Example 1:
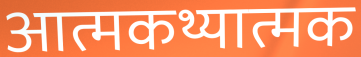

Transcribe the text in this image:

आत्मकथ्यात्मक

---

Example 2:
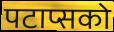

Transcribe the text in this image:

पटाप्सको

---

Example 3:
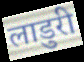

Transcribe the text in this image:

लाडुरी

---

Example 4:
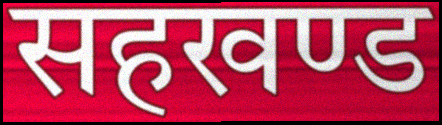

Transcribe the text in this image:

सहखण्ड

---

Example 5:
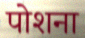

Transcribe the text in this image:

पोशना